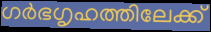
ഗർഭഗൃഹത്തിലേക്ക്